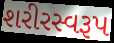
શરીરસ્વરૂપ